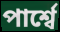
পার্শ্বে